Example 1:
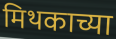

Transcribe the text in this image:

मिथकाच्या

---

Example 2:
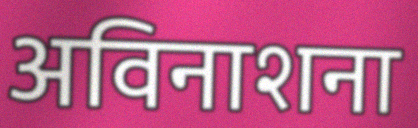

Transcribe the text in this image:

अविनाशना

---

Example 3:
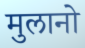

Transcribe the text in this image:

मुलानो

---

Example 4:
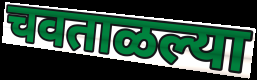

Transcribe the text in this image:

चवताळल्या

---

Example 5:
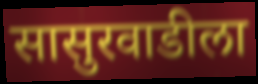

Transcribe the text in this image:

सासुरवाडीला